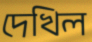
দেখিল